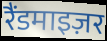
रैंडमाइज़र